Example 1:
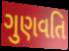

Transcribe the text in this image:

ગુણવતિ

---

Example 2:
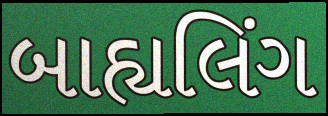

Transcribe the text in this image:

બાહ્યલિંગ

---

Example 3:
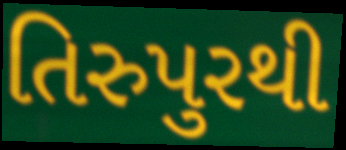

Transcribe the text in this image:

તિરુપુરથી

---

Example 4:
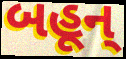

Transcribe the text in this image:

બહૂન્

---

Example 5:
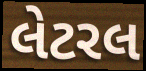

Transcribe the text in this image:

લેટરલ